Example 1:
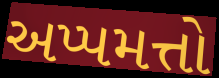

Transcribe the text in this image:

અપ્પમત્તો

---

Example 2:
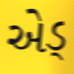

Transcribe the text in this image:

એડ્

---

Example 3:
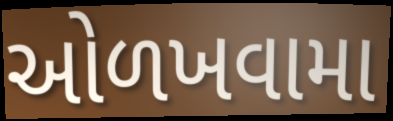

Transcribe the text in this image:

ઓળખવામા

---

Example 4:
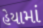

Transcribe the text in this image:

હેયામાં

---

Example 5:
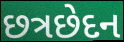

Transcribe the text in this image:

છત્રછેદન